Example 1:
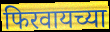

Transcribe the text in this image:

फिरवायच्या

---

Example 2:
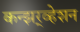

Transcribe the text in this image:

कन्झर्व्हेशन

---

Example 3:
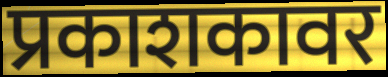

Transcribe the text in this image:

प्रकाशकावर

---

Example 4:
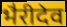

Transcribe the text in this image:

भैरीदेव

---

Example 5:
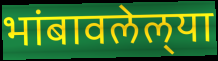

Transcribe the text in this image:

भांबावलेल्या